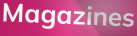
Magazines